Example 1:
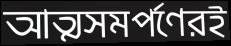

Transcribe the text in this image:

আত্মসমর্পণেরই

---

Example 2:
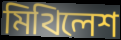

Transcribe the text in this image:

মিথিলেশ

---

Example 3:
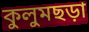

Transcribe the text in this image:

কুলুমছড়া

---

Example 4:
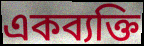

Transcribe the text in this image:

একব্যক্তি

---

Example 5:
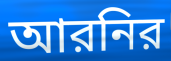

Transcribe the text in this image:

আরনির